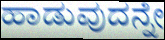
ಹಾಡುವುದನ್ನೇ